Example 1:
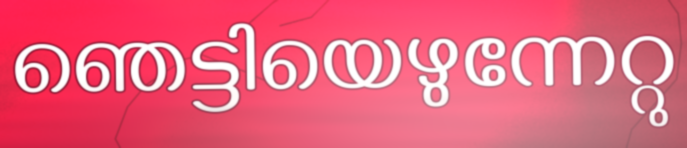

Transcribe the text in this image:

ഞെട്ടിയെഴുന്നേറ്റു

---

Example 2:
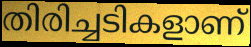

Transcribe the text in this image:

തിരിച്ചടികളാണ്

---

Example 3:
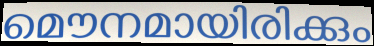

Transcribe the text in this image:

മൌനമായിരിക്കും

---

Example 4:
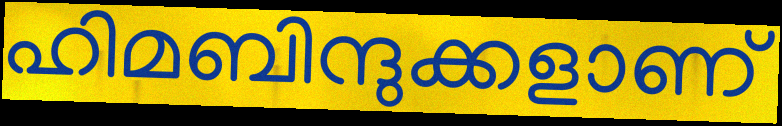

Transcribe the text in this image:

ഹിമബിന്ദുക്കളാണ്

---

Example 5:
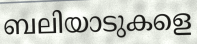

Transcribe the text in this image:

ബലിയാടുകളെ